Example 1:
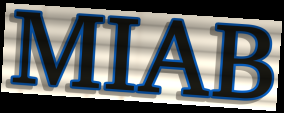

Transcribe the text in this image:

MIAB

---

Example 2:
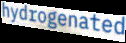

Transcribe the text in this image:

hydrogenated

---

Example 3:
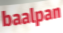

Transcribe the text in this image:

baalpan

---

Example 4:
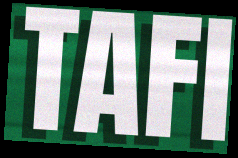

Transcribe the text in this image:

TAFI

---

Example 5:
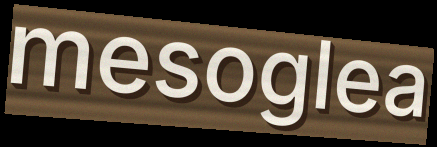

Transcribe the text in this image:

mesoglea